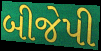
બીજેપી